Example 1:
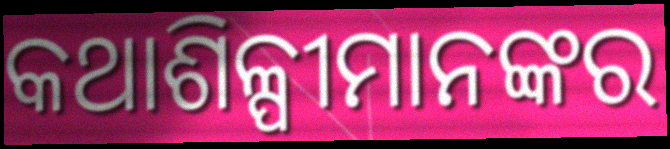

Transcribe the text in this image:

କଥାଶିଳ୍ପୀମାନଙ୍କର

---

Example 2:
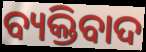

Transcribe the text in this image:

ବ୍ୟକ୍ତିବାଦ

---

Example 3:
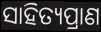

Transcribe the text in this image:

ସାହିତ୍ୟପ୍ରାଣ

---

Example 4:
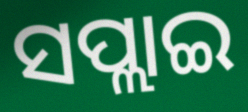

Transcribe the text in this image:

ସପ୍ଲାଇ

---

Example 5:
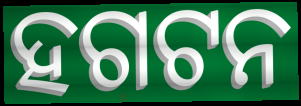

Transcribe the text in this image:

ହଗଟନ